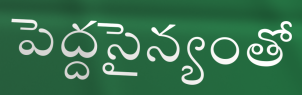
పెద్దసైన్యంతో